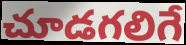
చూడగలిగే